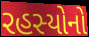
રહસ્યોનો